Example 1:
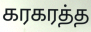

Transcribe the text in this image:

கரகரத்த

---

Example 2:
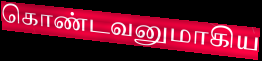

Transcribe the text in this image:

கொண்டவனுமாகிய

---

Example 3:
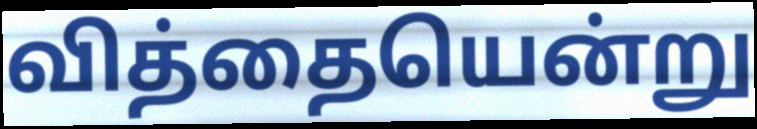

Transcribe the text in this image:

வித்தையென்று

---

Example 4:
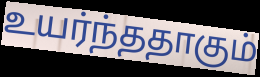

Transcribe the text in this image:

உயர்ந்ததாகும்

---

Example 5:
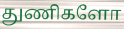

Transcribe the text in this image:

துணிகளோ